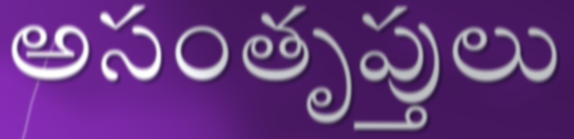
అసంతృప్తులు